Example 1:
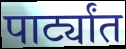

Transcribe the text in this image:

पार्ट्यांत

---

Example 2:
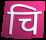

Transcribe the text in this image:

चि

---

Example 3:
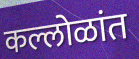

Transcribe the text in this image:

कल्लोळांत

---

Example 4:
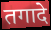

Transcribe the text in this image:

तगादे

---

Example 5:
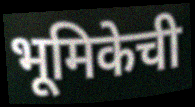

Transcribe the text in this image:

भूमिकेची